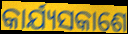
କାର୍ଯ୍ୟସକାଶେ